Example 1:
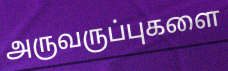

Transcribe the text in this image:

அருவருப்புகளை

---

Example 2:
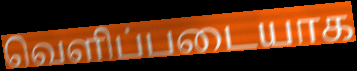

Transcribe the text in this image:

வெளிப்படையாக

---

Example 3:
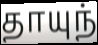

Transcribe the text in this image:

தாயுந்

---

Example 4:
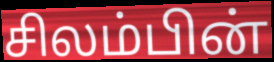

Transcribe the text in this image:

சிலம்பின்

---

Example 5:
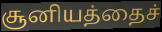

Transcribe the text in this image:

சூனியத்தைச்